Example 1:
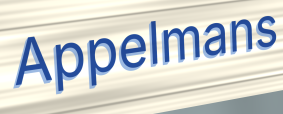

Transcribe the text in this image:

Appelmans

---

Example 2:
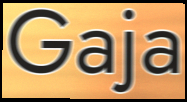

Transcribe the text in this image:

Gaja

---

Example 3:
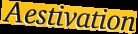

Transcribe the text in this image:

Aestivation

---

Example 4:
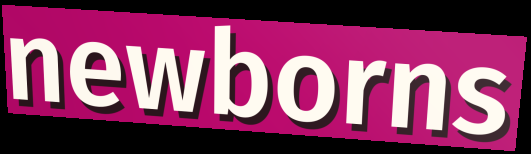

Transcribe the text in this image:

newborns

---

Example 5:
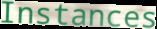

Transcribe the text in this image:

Instances